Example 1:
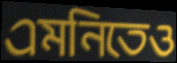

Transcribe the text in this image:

এমনিতেও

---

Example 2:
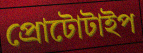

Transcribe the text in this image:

প্রোটোটাইপ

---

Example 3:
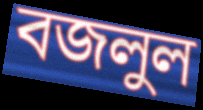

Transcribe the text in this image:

বজলুল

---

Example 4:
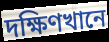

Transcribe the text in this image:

দক্ষিণখানে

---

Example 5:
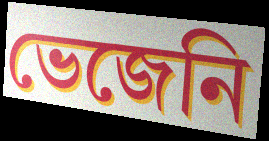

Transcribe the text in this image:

ভেজেনি